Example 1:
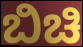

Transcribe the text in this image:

ಬಿಚಿ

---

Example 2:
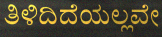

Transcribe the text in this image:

ತಿಳಿದಿದೆಯಲ್ಲವೇ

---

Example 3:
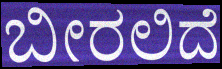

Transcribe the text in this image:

ಬೀರಲಿದೆ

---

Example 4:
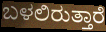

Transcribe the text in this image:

ಬಳಲಿರುತ್ತಾರೆ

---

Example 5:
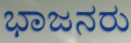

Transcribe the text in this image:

ಭಾಜನರು